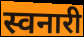
स्वनारी